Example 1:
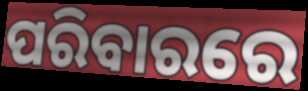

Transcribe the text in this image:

ପରିବାରରେ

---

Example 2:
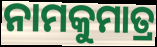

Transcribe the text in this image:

ନାମକୁମାତ୍ର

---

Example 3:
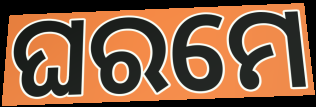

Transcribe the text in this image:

ଘରମେ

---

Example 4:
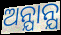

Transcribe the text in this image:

ଅନ୍ଯାନ୍ଯ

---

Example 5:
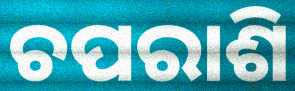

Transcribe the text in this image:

ଚପରାଶି